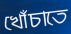
খোঁচাতে